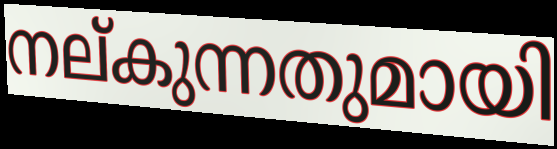
നല്കുന്നതുമായി